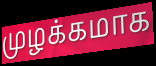
முழக்கமாக